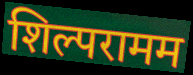
शिल्परामम